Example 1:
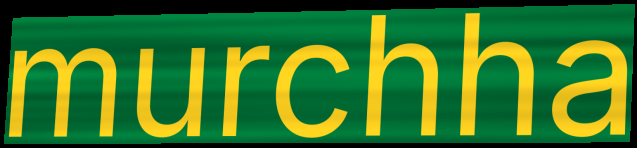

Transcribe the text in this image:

murchha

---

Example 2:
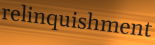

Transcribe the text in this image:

relinquishment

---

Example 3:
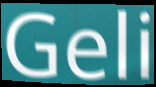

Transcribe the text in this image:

Geli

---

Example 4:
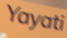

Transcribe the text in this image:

Yayati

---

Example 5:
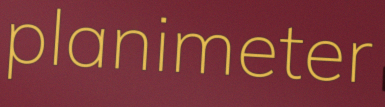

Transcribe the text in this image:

planimeter